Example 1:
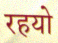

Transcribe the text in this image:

रहयो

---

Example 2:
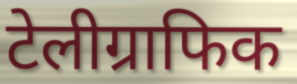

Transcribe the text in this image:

टेलीग्राफिक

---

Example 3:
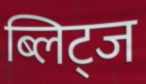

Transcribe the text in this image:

ब्लिट्ज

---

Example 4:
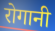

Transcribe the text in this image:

रोगानी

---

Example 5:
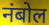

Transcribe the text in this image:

नंबोल